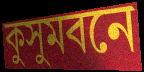
কুসুমবনে